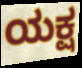
ಯಕ್ಷ